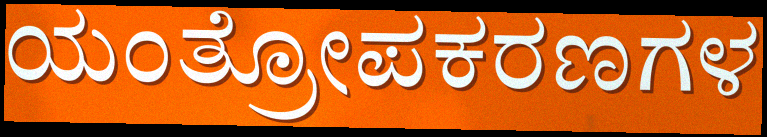
ಯಂತ್ರೋಪಕರಣಗಳ